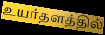
உயர்தளத்தில்